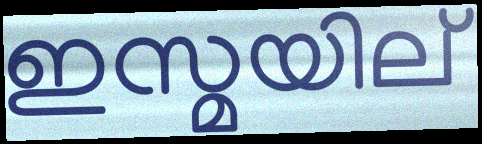
ഇസ്മയില്